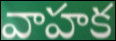
వాహక